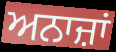
ਅਨਾਜ਼ਾਂ